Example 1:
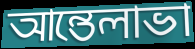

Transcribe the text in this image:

আন্তেলাভা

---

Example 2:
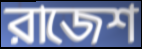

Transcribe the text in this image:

রাজেশ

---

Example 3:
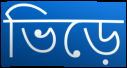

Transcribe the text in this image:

ভিড়ে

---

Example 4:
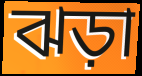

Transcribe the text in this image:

ঝড়া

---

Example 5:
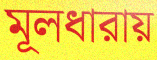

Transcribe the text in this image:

মূলধারায়